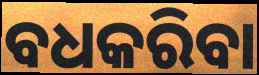
ବଧକରିବା